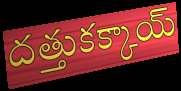
దత్తుకక్కాయ్